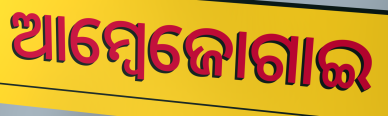
ଆମ୍ବେଜୋଗାଇ